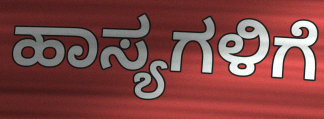
ಹಾಸ್ಯಗಳಿಗೆ